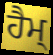
ਹੈਮ੍